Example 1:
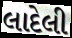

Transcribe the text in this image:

લાદેલી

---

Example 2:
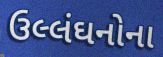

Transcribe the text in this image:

ઉલ્લંઘનોના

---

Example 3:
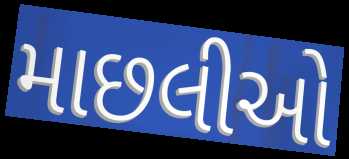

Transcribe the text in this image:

માછલીઓ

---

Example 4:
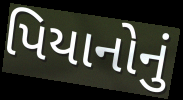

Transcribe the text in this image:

પિયાનોનું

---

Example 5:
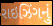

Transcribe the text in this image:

રાઇઝિંગનું